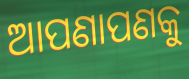
ଆପଣାପଣକୁ